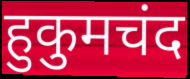
हुकुमचंद